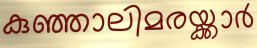
കുഞ്ഞാലിമരയ്ക്കാർ